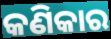
କଣିକାର